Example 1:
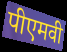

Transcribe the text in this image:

पीएमवी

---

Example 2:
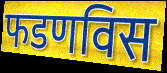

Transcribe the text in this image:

फडणविस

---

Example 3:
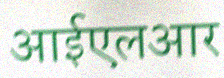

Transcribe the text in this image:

आईएलआर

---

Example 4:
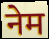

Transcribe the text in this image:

नेम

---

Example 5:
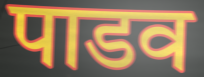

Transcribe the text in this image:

पाडव